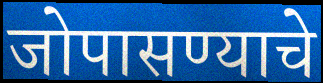
जोपासण्याचे